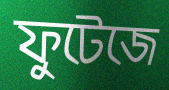
ফুটেজে